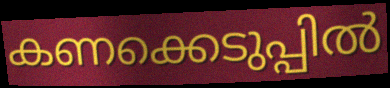
കണക്കെടുപ്പിൽ